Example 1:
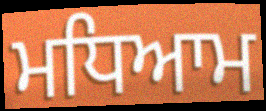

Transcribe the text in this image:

ਮਧਿਆਮ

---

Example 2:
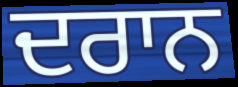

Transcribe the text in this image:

ਦਰਾਨ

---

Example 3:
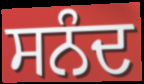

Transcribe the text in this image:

ਸਨੰਦ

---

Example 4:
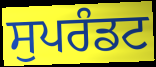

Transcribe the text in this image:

ਸੁਪਰੰਡਟ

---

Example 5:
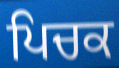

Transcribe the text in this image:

ਪਿਚਕ